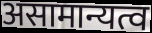
असामान्यत्व